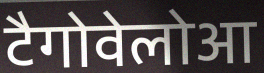
टैगोवेलोआ